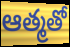
ఆత్మతో